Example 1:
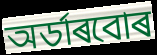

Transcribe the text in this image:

অৰ্ডাৰবোৰ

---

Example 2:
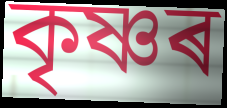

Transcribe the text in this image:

কৃষ্ণৰ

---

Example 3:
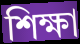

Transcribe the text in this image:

শিক্ষা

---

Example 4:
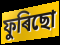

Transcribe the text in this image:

ফুৰিছো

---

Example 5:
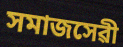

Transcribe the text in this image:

সমাজসেৱী